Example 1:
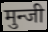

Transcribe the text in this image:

मुन्जी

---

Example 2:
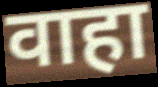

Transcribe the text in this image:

वाहा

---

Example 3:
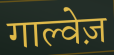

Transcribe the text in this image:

गाल्वेज़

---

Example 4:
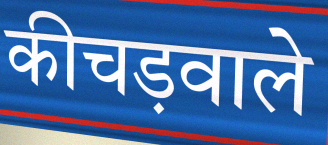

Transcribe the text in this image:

कीचड़वाले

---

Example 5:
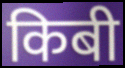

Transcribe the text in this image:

किबी